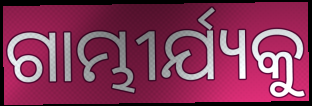
ଗାମ୍ଭୀର୍ଯ୍ୟକୁ